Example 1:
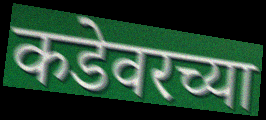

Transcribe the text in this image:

कडेवरच्या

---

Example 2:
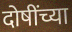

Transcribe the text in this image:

दोषींच्या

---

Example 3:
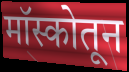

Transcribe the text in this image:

मॉस्कोतून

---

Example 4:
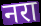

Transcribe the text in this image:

नरा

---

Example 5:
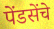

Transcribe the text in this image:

पेंडसेंचे